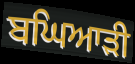
ਬਘਿਆੜੀ